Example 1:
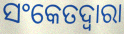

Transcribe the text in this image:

ସଂକେତଦ୍ୱାରା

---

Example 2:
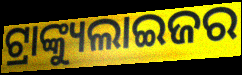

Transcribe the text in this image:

ଟ୍ରାଙ୍କ୍ୟୁଲାଇଜର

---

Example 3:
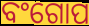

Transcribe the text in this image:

ବଂଗୋପ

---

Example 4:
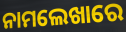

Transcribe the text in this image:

ନାମଲେଖାରେ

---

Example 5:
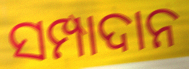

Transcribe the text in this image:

ସମ୍ପାଦାନ